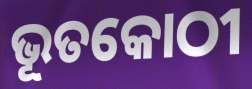
ଭୂତକୋଠୀ